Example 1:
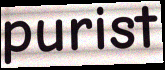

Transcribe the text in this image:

purist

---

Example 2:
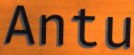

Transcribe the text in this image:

Antu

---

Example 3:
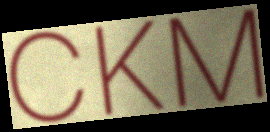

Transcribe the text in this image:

CKM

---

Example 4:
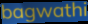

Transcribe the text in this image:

bagwathi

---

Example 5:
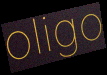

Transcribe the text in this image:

oligo